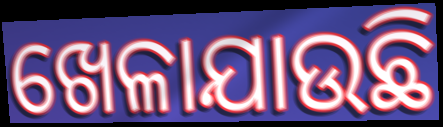
ଖେଳାଯାଉଛି